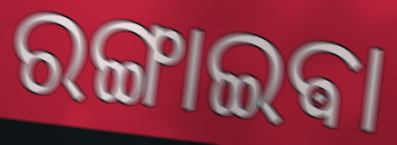
ରଙ୍ଗାଇଵା